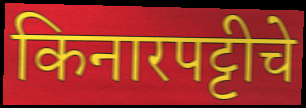
किनारपट्टीचे